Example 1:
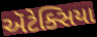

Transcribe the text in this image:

ઍટેક્સિયા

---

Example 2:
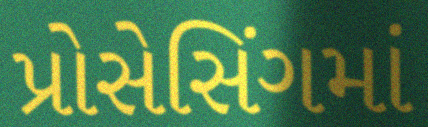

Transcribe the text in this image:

પ્રોસેસિંગમાં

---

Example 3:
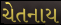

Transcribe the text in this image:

ચેતનાય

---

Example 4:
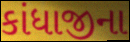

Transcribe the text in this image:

કાંધાજીના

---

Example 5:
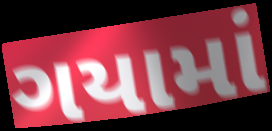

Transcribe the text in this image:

ગયામાં